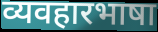
व्यवहारभाषा